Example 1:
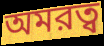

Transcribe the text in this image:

অমরত্ব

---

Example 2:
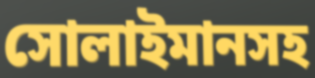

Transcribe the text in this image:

সোলাইমানসহ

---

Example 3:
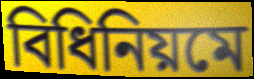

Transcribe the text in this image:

বিধিনিয়মে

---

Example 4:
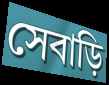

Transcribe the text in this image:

সেবাড়ি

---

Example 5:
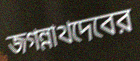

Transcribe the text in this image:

জগন্নাথদেবের